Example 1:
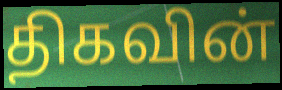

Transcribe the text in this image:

திகவின்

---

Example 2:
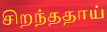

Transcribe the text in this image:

சிறந்ததாய்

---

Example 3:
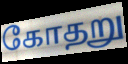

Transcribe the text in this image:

கோதறு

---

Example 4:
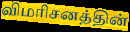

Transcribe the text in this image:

விமரிசனத்தின்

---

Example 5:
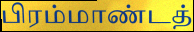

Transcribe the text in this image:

பிரம்மாண்டத்